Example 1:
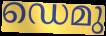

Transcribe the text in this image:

ഡെമു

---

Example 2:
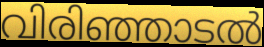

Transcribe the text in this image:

വിരിഞ്ഞാടൽ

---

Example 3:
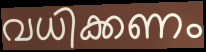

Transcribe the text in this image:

വധിക്കണം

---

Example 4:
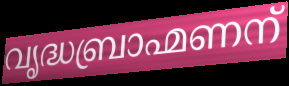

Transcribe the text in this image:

വൃദ്ധബ്രാഹ്മണന്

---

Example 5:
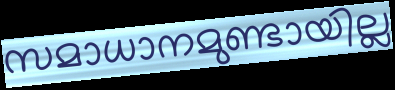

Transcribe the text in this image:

സമാധാനമുണ്ടായില്ല